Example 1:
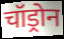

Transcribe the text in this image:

चॉड्रोन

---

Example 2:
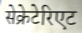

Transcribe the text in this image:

सेक्रेटेरिएट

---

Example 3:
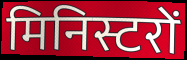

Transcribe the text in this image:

मिनिस्टरों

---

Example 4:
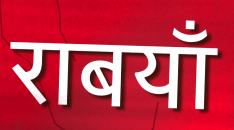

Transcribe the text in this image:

राबयाँ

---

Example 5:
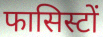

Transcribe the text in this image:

फासिस्टों